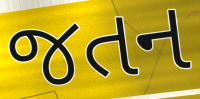
જતન